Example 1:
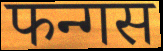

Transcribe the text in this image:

फन्गस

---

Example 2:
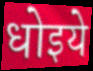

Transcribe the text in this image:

धोइये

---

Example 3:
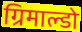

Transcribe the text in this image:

ग्रिमाल्डो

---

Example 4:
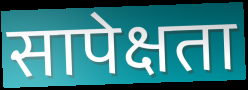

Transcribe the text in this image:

सापेक्षता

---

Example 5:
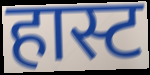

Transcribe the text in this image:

हास्ट